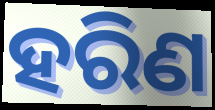
ହରିଣ